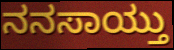
ನನಸಾಯ್ತು